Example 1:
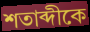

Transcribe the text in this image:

শতাব্দীকে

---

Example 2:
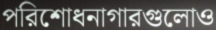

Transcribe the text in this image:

পরিশোধনাগারগুলোও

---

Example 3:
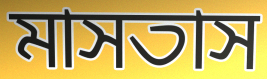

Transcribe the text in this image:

মাসতাস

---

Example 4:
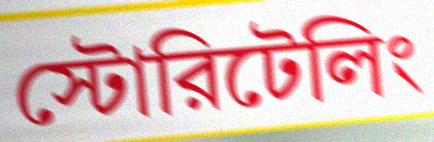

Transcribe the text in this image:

স্টোরিটেলিং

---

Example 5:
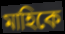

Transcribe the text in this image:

মাহিকে